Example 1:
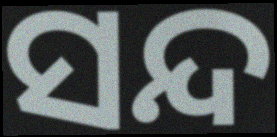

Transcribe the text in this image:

ସନ୍ଦ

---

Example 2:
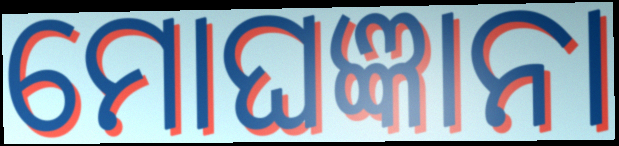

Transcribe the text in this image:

ମୋଘଜ୍ଞାନା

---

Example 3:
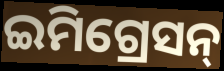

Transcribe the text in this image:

ଇମିଗ୍ରେସନ୍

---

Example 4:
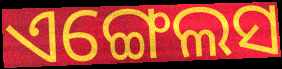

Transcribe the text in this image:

ଏଙ୍ଗେଲସ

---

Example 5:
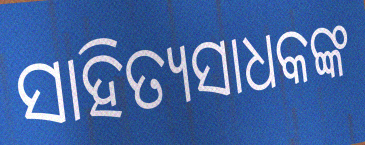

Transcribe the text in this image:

ସାହିତ୍ୟସାଧକଙ୍କ